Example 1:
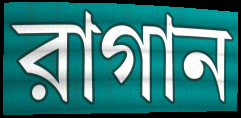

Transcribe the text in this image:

রাগান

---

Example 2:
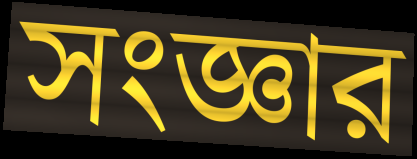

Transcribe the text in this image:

সংজ্ঞার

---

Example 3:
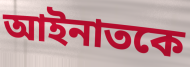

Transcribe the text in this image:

আইনাতকে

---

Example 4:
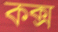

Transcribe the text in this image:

কক্স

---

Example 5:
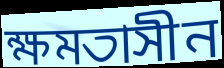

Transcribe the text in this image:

ক্ষমতাসীন